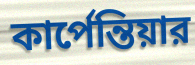
কার্পেন্তিয়ার